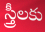
స్త్రీలకు